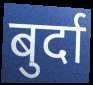
बुर्दा